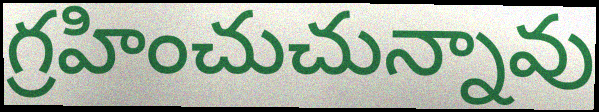
గ్రహించుచున్నావు